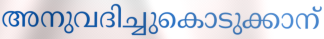
അനുവദിച്ചുകൊടുക്കാന്